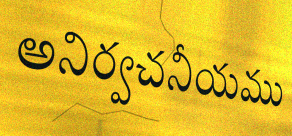
అనిర్వచనీయము